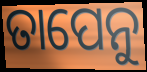
ତାପେନୁ